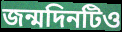
জন্মদিনটিও